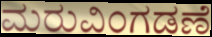
ಮರುವಿಂಗಡಣೆ